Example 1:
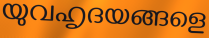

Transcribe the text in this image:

യുവഹൃദയങ്ങളെ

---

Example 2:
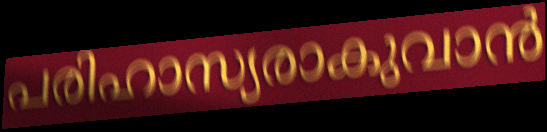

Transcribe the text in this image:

പരിഹാസ്യരാകുവാൻ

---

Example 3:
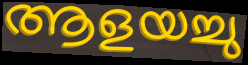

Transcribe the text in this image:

ആളയച്ചു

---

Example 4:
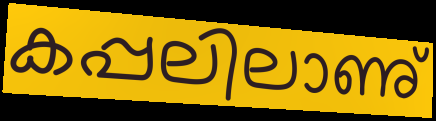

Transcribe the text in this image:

കപ്പലിലാണു്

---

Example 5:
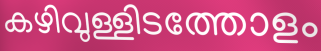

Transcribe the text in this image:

കഴിവുള്ളിടത്തോളം